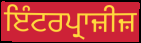
ਇੰਟਰਪ੍ਰਾਜ਼ੀਜ਼